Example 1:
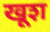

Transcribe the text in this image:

खूश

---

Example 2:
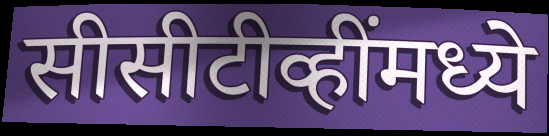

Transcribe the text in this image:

सीसीटीव्हींमध्ये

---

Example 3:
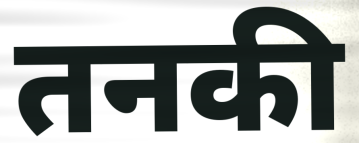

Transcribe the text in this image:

तनकी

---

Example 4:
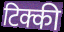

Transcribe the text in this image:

टिक्की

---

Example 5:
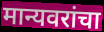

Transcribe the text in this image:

मान्यवरांचा